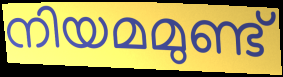
നിയമമുണ്ട്